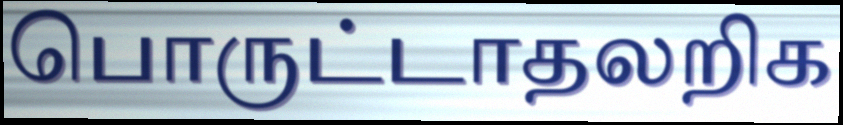
பொருட்டாதலறிக